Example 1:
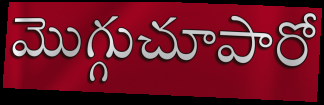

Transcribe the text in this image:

మొగ్గుచూపారో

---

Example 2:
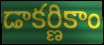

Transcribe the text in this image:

డాకర్ణికాం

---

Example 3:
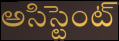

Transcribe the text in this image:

అసిస్టెంట్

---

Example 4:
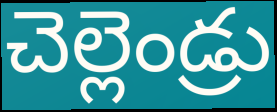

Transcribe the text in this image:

చెల్లెండ్రు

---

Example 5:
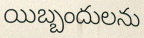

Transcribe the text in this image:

యిబ్బందులను